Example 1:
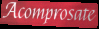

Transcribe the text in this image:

Acomprosate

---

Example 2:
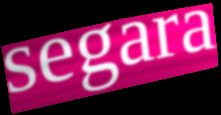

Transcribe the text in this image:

segara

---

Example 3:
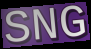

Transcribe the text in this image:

SNG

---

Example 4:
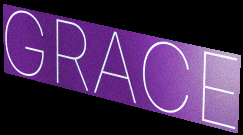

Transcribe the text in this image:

GRACE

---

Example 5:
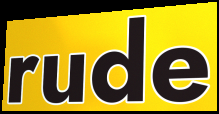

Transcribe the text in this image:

rude